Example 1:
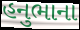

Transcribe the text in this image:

હનુભાના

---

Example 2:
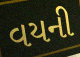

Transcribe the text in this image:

વયની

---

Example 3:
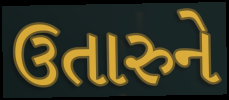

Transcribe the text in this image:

ઉતારુને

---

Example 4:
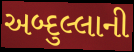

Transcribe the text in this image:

અબ્દુલ્લાની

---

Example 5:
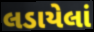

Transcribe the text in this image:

લડાયેલાં